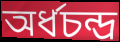
অৰ্ধচন্দ্ৰ